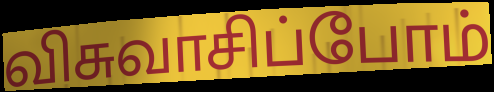
விசுவாசிப்போம்